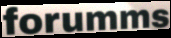
forumms